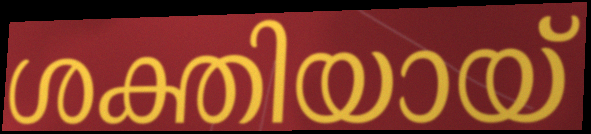
ശക്തിയായ്